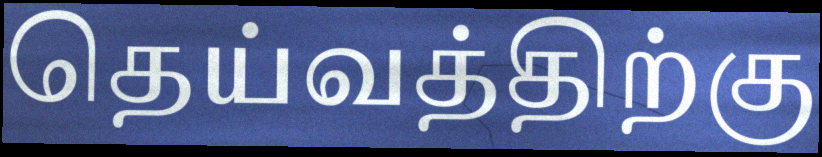
தெய்வத்திற்கு